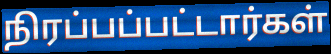
நிரப்பப்பட்டார்கள்